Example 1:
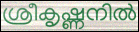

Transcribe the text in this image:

ശ്രീകൃഷ്ണനിൽ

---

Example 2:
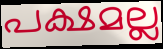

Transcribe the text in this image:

പക്ഷമല്ല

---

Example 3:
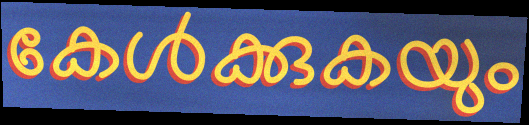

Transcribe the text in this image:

കേൾക്കുകയും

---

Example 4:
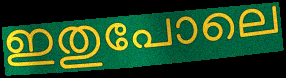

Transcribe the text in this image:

ഇതുപോലെ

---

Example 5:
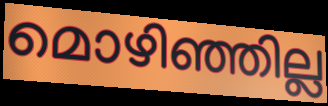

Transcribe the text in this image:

മൊഴിഞ്ഞില്ല